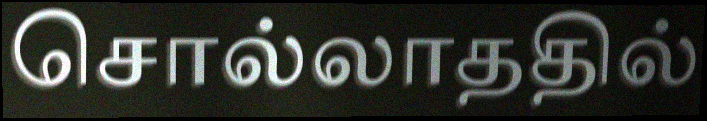
சொல்லாததில்